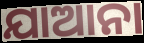
ଯାଆନା